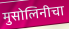
मुसोलिनीचा